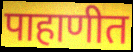
पाहाणीत